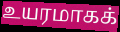
உயரமாகக்